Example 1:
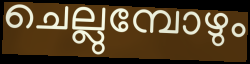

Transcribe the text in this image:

ചെല്ലുമ്പോഴും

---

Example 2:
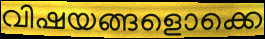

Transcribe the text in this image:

വിഷയങ്ങളൊക്കെ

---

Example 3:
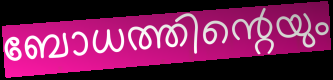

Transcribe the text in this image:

ബോധത്തിന്റെയും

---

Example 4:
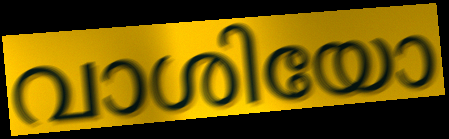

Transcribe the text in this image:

വാശിയോ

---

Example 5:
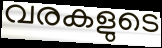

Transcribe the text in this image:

വരകളുടെ